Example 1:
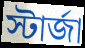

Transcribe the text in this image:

স্টার্জা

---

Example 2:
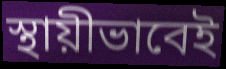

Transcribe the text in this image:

স্থায়ীভাবেই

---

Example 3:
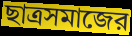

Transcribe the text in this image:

ছাত্রসমাজের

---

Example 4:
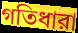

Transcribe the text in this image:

গতিধারা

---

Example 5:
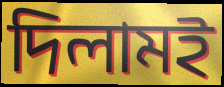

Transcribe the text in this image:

দিলামই